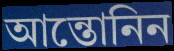
আন্তোনিন